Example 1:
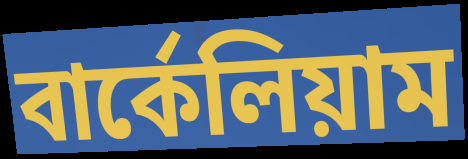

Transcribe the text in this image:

বার্কেলিয়াম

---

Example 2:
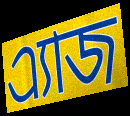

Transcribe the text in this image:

এ্যাজ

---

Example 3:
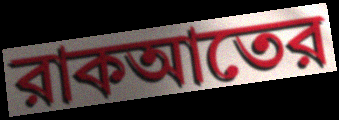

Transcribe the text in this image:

রাকআতের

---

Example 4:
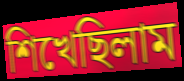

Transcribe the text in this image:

শিখেছিলাম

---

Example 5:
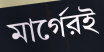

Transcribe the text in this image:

মার্গেরই